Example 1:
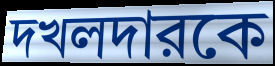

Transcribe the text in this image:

দখলদারকে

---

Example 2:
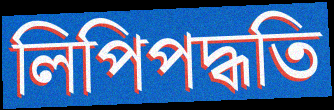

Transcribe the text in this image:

লিপিপদ্ধতি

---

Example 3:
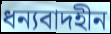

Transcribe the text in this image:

ধন্যবাদহীন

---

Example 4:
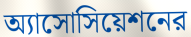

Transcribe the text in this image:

অ্যাসোসিয়েশনের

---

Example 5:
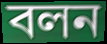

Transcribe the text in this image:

বলন